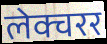
लेक्चरर